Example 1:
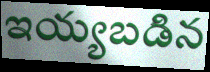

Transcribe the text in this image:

ఇయ్యబడిన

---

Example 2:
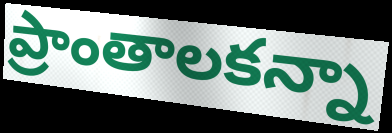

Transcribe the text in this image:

ప్రాంతాలకన్నా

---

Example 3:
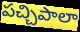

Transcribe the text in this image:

పచ్చిపాలా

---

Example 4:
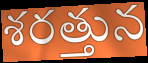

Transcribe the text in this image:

శరత్తున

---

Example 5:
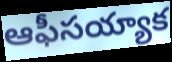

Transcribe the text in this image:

ఆఫీసయ్యాక